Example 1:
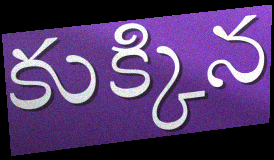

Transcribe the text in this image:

కుక్కిన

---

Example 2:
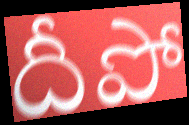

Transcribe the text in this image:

దీపో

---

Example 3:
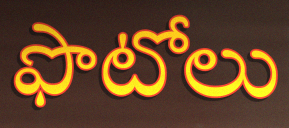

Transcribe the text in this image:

ఫొటోలు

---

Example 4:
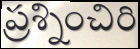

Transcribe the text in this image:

ప్రశ్నించిరి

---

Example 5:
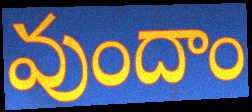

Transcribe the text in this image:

వుందాం